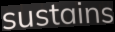
sustains